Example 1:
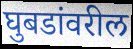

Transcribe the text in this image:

घुबडांवरील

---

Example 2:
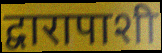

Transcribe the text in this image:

द्वारापाशी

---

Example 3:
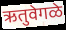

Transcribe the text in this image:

ऋतुवेगळे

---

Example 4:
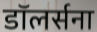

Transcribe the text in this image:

डॉलर्सना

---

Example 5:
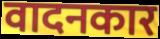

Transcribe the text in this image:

वादनकार